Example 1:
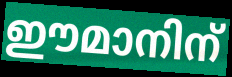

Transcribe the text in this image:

ഈമാനിന്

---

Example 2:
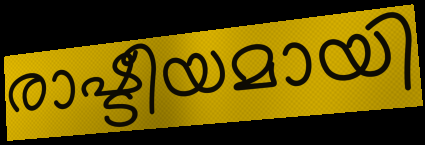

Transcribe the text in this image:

രാഷ്ടീയമായി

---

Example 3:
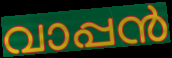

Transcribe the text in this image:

വാപ്പൻ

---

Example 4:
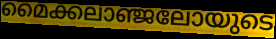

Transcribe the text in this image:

മൈക്കലാഞ്ജലോയുടെ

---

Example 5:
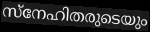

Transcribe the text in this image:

സ്നേഹിതരുടെയും